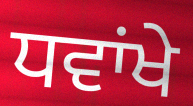
ਧਵਾਂਖੇ